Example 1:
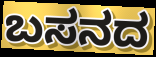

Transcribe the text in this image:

ಬಸನದ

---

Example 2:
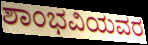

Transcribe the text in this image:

ಶಾಂಭವಿಯವರ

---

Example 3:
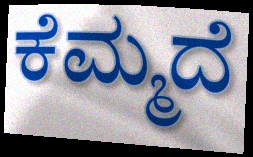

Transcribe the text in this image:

ಕೆಮ್ಮದೆ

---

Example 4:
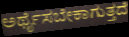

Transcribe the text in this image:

ಅರ್ಥೈಸಬೇಕಾಗುತ್ತದೆ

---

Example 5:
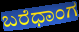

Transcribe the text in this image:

ಬರೆಧಾಂಗ